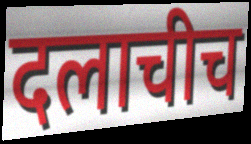
दलाचीच